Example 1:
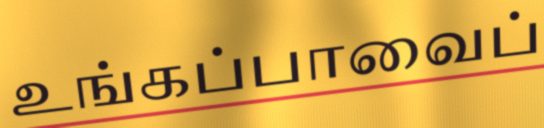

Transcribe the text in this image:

உங்கப்பாவைப்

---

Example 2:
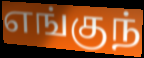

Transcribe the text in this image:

எங்குந்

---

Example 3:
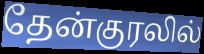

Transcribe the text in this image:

தேன்குரலில்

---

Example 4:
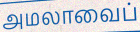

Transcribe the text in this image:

அமலாவைப்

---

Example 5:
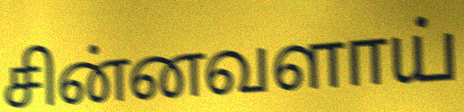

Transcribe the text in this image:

சின்னவளாய்